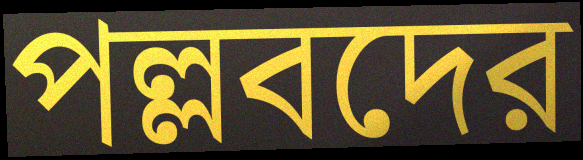
পল্লবদের